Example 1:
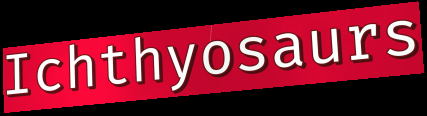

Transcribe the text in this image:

Ichthyosaurs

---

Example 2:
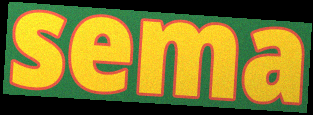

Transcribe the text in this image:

sema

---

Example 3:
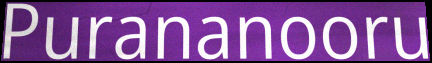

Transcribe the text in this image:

Purananooru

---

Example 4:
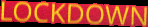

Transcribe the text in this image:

LOCKDOWN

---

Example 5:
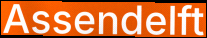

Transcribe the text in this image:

Assendelft